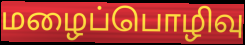
மழைப்பொழிவு